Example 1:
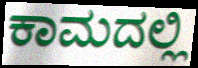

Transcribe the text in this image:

ಕಾಮದಲ್ಲಿ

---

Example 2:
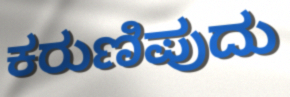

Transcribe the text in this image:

ಕರುಣಿಪುದು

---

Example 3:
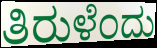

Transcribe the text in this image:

ತಿರುಳೆಂದು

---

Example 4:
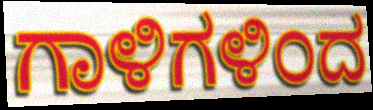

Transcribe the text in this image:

ಗಾಳಿಗಳಿಂದ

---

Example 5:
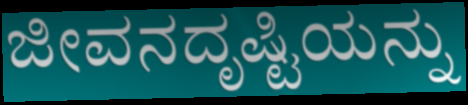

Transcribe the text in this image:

ಜೀವನದೃಷ್ಟಿಯನ್ನು